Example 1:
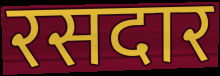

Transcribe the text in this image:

रसदार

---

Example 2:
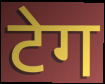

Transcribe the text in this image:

टेग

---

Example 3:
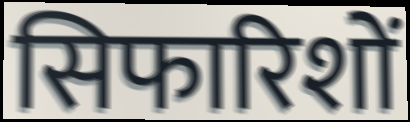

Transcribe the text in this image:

सिफारिशों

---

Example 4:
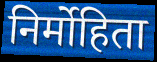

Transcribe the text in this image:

निर्मोहिता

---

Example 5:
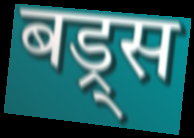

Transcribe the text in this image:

बड्र्स